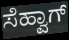
ಸೆಹ್ವಾಗ್